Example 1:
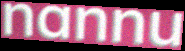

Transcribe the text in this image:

nannu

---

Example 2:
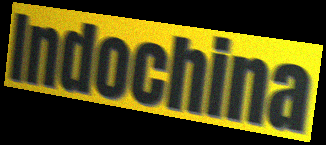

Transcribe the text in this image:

Indochina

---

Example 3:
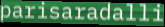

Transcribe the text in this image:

parisaradalli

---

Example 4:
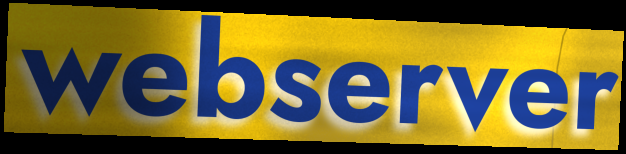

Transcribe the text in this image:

webserver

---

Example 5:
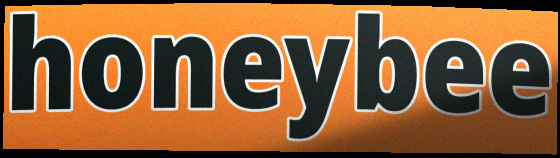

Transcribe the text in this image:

honeybee